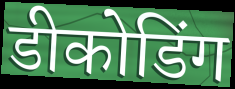
डीकोडिंग